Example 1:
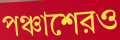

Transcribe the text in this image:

পঞ্চাশেরও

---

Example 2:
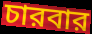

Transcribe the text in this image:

চারবার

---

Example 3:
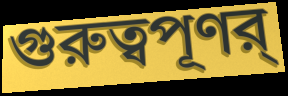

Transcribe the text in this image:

গুরুত্বপূণর্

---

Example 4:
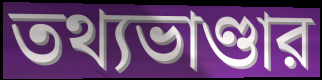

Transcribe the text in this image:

তথ্যভাণ্ডার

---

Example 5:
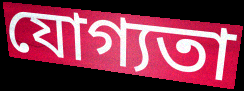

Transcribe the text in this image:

যোগ্যতা